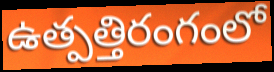
ఉత్పత్తిరంగంలో